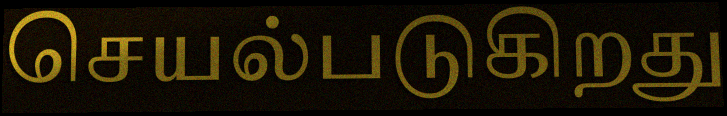
செயல்படுகிறது